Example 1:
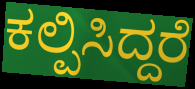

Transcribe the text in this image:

ಕಲ್ಪಿಸಿದ್ದರೆ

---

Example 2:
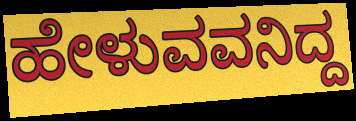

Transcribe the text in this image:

ಹೇಳುವವನಿದ್ದ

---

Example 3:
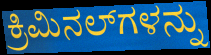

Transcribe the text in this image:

ಕ್ರಿಮಿನಲ್‍ಗಳನ್ನು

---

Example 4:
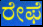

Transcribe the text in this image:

ರೇಫೆ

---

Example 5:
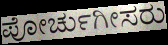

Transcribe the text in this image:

ಪೋರ್ಚುಗೀಸರು